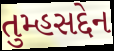
તુમ્હસદ્દેન